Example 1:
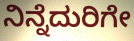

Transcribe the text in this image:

ನಿನ್ನೆದುರಿಗೇ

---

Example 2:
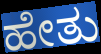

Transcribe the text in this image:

ಹೇತು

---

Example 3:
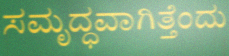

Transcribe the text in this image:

ಸಮೃದ್ಧವಾಗಿತ್ತೆಂದು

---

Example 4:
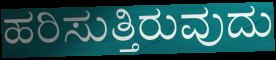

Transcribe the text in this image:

ಹರಿಸುತ್ತಿರುವುದು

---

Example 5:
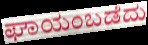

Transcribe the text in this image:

ಘಾಯಂಬಡೆದು